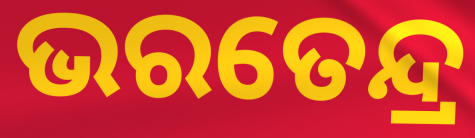
ଭରତେନ୍ଦ୍ର